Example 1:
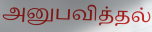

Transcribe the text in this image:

அனுபவித்தல்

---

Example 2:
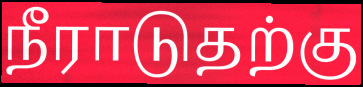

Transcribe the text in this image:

நீராடுதற்கு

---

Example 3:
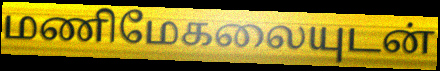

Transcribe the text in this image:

மணிமேகலையுடன்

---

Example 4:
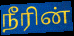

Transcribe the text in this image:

நீரின்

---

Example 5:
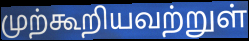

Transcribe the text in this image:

முற்கூறியவற்றுள்